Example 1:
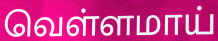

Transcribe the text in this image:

வெள்ளமாய்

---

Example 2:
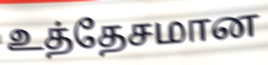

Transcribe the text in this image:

உத்தேசமான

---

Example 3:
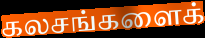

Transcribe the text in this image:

கலசங்களைக்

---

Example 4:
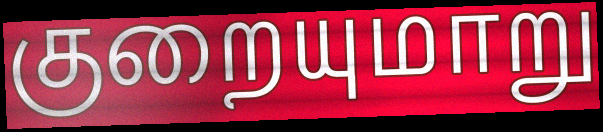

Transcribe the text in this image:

குறையுமாறு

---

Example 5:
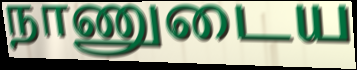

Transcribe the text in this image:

நாணுடைய